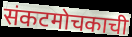
संकटमोचकाची